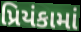
પ્રિયંકામાં